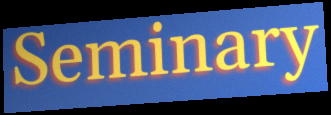
Seminary